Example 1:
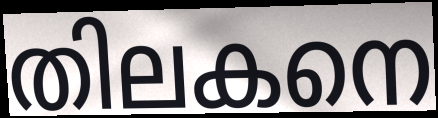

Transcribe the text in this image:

തിലകനെ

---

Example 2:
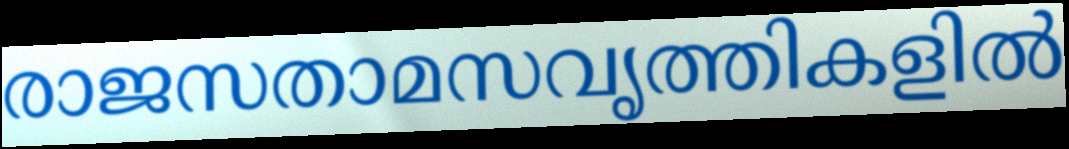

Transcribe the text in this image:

രാജസതാമസവൃത്തികളിൽ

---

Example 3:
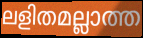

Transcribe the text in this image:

ലളിതമല്ലാത്ത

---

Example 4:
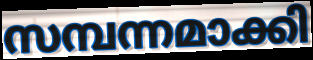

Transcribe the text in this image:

സമ്പന്നമാക്കി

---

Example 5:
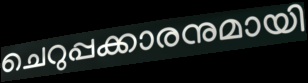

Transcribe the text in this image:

ചെറുപ്പക്കാരനുമായി